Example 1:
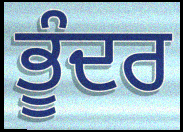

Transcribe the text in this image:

ਭੂੰਦਰ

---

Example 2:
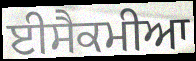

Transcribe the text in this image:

ਈਸੈਕਮੀਆ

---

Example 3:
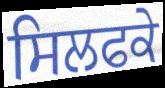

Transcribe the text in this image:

ਸਿਲਫਕੇ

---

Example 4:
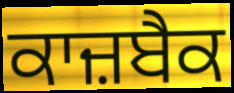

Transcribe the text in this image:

ਕਾਜ਼ਬੈਕ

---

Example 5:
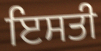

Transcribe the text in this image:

ਇਸਤੀ